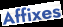
Affixes